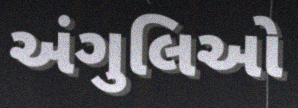
અંગુલિઓ